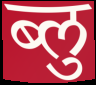
ब्लु